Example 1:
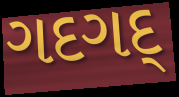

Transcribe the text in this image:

ગદગદ્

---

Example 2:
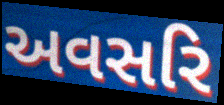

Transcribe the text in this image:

અવસરિ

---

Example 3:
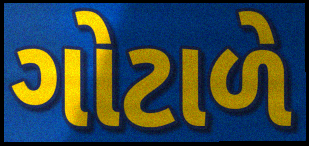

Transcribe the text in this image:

ગોટાળે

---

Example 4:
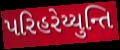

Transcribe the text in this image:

પરિહરેય્યુન્તિ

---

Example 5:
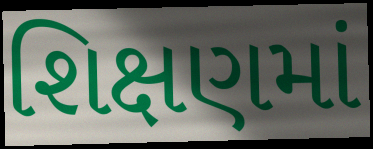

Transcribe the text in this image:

શિક્ષણમાં